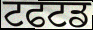
ਟਫਟਡ